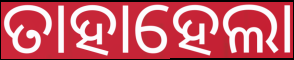
ତାହାହେଲା